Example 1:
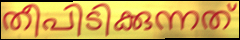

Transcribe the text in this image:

തീപിടിക്കുന്നത്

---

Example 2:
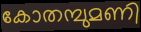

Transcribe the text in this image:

കോതമ്പുമണി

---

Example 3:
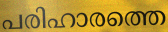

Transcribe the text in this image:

പരിഹാരത്തെ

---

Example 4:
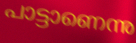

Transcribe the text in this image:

പാട്ടാണെന്നു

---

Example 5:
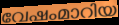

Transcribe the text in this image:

വേഷംമാറിയ